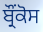
ਬ੍ਰੌਂਕੋਸ